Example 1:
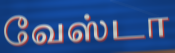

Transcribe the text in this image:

வேஸ்டா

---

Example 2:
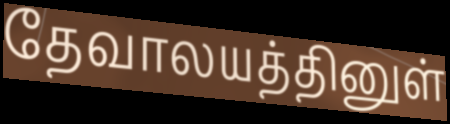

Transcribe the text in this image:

தேவாலயத்தினுள்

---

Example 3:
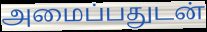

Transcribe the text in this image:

அமைப்பதுடன்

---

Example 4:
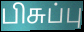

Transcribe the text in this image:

பிசுப்பு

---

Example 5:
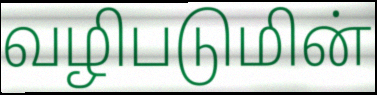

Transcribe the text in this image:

வழிபடுமின்